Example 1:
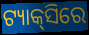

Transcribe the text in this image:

ଟ୍ୟାକ୍‍ସିରେ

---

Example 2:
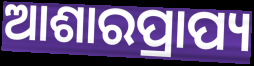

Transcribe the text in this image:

ଆଶାରପ୍ରାପ୍ୟ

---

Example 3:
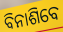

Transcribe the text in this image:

ବିନାଶିବେ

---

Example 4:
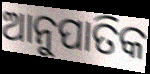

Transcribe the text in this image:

ଆନୁପାତିକ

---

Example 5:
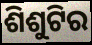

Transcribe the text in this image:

ଶିଶୁଟିର